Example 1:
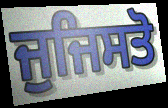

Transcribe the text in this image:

ਜੁਜਿਸਤੋ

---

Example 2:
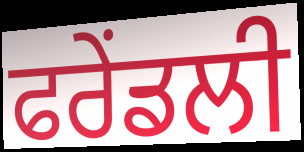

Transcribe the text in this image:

ਫਰੇਂਡਲੀ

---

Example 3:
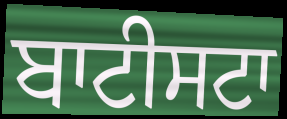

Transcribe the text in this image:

ਬਾਟੀਸਟਾ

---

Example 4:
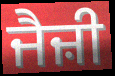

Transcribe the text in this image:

ਜੈਜ਼ੀ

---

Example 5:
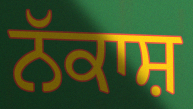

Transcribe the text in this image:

ਨੱਕਾਸ਼